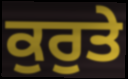
ਕੁਰੁਤੇ